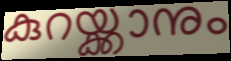
കുറയ്ക്കാനും